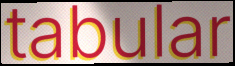
tabular